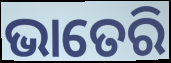
ଭାତେରି